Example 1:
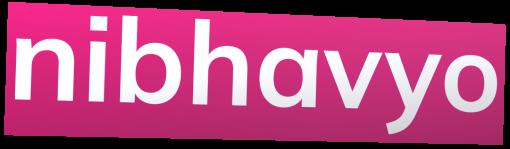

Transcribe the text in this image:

nibhavyo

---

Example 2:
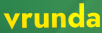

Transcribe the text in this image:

vrunda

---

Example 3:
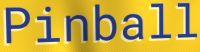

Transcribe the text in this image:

Pinball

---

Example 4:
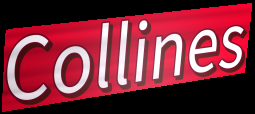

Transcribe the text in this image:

Collines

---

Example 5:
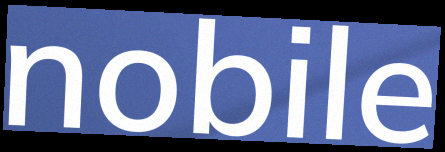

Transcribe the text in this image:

nobile